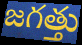
జగత్తు